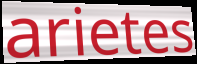
arietes